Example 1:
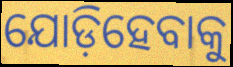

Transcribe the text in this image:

ଯୋଡ଼ିହେବାକୁ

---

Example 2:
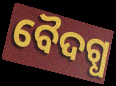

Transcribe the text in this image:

ବୈଦଗ୍ଧ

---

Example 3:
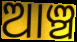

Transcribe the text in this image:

ଆଞ୍ଚ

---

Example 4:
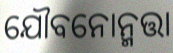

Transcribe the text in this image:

ଯୌବନୋନ୍ମତ୍ତା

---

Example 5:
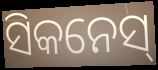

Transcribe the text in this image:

ସିକନେସ୍